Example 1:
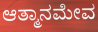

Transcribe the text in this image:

ಆತ್ಮಾನಮೇವ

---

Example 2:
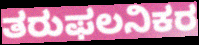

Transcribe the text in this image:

ತರುಫಲನಿಕರ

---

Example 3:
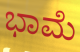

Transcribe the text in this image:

ಭಾಮೆ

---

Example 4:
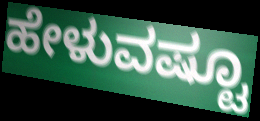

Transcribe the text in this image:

ಹೇಳುವಷ್ಟೂ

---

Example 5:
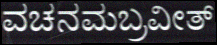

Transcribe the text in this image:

ವಚನಮಬ್ರವೀತ್